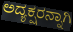
ಅದ್ಯಕ್ಷರನ್ನಾಗಿ